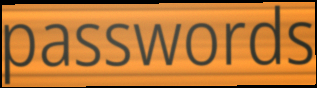
passwords